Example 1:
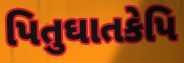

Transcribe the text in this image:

પિતુઘાતકેપિ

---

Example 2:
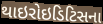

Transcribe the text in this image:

થાઇરોઇડિટિસના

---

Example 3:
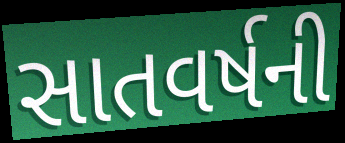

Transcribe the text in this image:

સાતવર્ષની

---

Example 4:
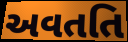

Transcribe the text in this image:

અવતતિ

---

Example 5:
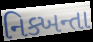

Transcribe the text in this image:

નિક્ખન્તા